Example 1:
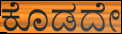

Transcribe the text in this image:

ಕೊಡದೇ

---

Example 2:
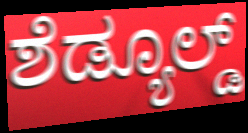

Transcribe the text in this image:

ಶೆಡ್ಯೂಲ್ಡ್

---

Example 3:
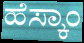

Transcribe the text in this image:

ಹೆಸ್ಕಾಂ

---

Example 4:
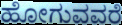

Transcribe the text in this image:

ಹೋಗುವವರೆ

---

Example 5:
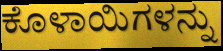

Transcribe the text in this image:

ಕೊಳಾಯಿಗಳನ್ನು